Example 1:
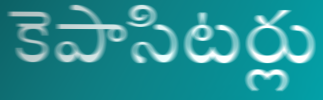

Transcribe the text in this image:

కెపాసిటర్లు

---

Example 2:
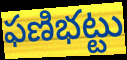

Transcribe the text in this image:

ఫణిభట్టు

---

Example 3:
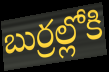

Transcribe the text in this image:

బుర్రల్లోకి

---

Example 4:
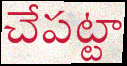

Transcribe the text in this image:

చేపట్టా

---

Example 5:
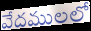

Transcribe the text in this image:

వేదములలో